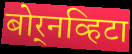
बोर्नव्हिटा